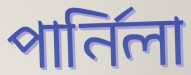
পার্নিলা